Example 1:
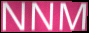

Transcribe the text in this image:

NNM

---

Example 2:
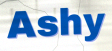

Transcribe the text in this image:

Ashy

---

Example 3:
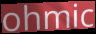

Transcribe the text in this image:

ohmic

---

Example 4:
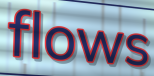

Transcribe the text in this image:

flows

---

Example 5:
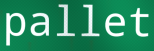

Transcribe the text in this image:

pallet